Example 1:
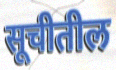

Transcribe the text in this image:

सूचीतील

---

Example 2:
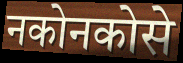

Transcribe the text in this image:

नकोनकोसे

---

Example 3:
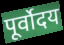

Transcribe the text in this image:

पूर्वोदय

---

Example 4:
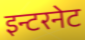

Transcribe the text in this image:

इन्टरनेट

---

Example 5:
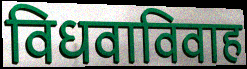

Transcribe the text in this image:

विधवाविवाह